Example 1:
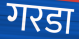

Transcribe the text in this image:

गरडा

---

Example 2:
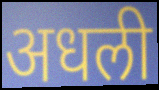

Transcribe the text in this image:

अधली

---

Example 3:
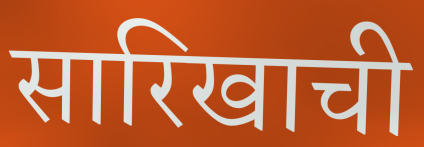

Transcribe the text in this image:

सारिखाची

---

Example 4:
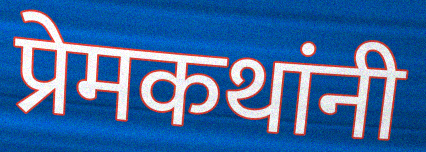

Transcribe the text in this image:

प्रेमकथांनी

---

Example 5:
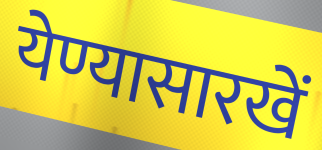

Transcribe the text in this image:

येण्यासारखें